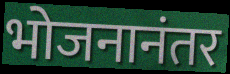
भोजनानंतर